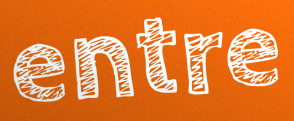
entre